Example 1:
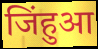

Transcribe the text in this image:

जिंहुआ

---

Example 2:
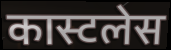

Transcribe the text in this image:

कास्टलेस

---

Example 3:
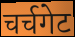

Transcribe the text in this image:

चर्चगेट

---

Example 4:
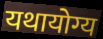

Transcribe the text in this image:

यथायोग्य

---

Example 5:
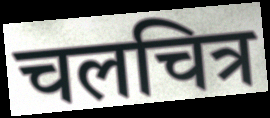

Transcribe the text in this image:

चलचित्र